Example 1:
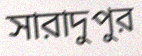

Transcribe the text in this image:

সারাদুপুর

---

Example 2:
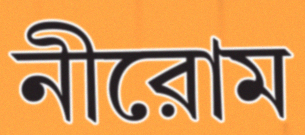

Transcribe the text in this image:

নীরোম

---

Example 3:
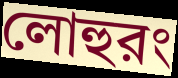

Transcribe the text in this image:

লোহুরং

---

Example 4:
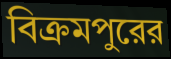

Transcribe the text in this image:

বিক্রমপুরের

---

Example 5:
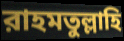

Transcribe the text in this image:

রাহমতুল্লাহি